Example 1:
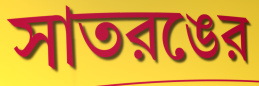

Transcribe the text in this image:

সাতরঙের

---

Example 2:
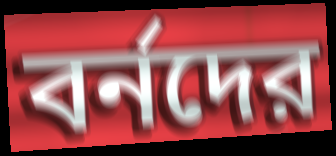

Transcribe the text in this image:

বর্নদের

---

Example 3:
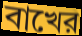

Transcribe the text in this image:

বাখের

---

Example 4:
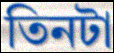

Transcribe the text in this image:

তিনটা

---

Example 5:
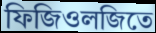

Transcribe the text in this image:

ফিজিওলজিতে